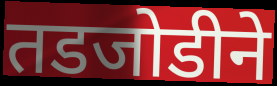
तडजोडीने